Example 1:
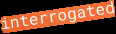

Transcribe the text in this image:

interrogated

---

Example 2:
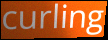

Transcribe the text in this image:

curling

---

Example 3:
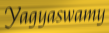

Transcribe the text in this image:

Yagyaswamy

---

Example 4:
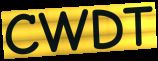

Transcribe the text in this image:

CWDT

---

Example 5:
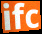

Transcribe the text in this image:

ifc